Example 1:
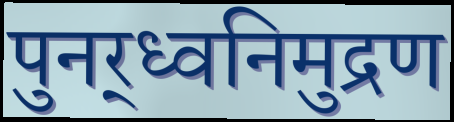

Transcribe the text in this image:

पुनर्ध्वनिमुद्रण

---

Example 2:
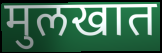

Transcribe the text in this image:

मुलखात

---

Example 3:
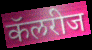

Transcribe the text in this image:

कॅलरीज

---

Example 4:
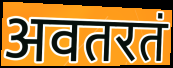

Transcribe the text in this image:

अवतरतं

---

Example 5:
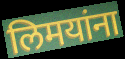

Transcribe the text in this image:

लिमयांना